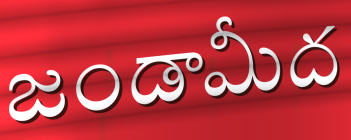
జండామీద